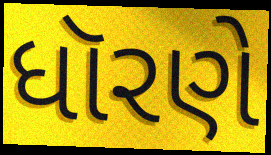
ધૉરણે